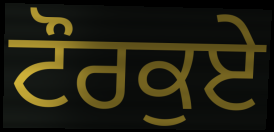
ਟੌਰਕੁਏ